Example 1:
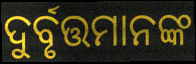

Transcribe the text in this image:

ଦୁର୍ବୃତ୍ତମାନଙ୍କ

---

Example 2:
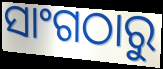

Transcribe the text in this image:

ସାଂଗଠାରୁ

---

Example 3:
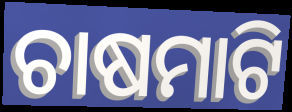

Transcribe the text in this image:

ଚାଷମାଟି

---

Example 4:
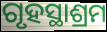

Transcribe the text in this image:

ଗୃହସ୍ଥାଶ୍ରମ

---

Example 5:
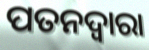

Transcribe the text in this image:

ପତନଦ୍ଵାରା